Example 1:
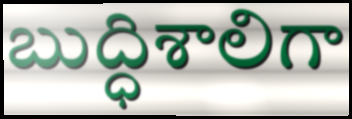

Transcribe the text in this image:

బుద్ధిశాలిగా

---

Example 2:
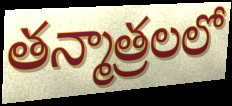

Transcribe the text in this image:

తన్మాత్రలలో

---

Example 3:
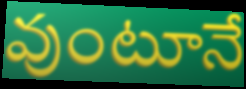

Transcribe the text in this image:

వుంటూనే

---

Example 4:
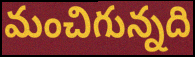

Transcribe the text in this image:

మంచిగున్నది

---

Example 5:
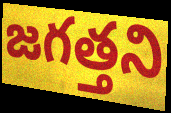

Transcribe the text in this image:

జగత్తని